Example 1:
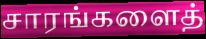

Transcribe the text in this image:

சாரங்களைத்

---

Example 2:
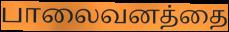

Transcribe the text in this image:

பாலைவனத்தை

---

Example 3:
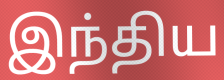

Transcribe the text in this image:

இந்திய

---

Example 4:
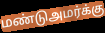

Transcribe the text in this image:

மண்டுஅமர்க்கு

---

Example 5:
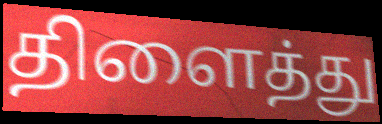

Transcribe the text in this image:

திளைத்து